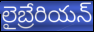
లైబ్రేరియన్